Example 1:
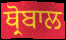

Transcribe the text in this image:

ਥ੍ਰੋਬਾਲ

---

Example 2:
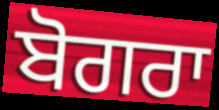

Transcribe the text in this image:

ਬੋਗਰਾ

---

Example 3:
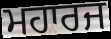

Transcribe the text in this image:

ਮਹਾਰਜ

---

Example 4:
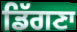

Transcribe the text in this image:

ਡਿੱਗਣਾ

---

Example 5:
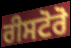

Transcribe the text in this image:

ਰੀਸਟੋਰੋ